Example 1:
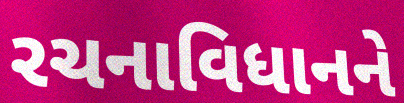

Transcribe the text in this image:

રચનાવિધાનને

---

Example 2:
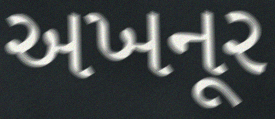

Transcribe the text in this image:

અખનૂર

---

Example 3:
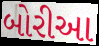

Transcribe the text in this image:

બોરીઆ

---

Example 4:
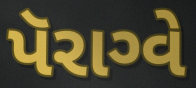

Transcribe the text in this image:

પૅરાગ્વે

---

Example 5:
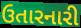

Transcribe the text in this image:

ઉતારનારી